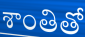
శాంతితో